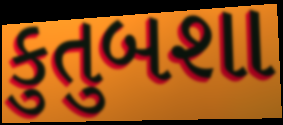
કુતુબશા